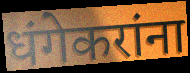
धंगेकरांना